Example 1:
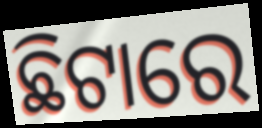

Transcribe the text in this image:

ଛିଟାରେ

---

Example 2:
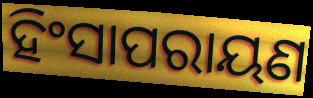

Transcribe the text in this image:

ହିଂସାପରାୟଣ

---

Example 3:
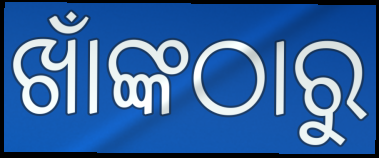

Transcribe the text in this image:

ଖାଁଙ୍କଠାରୁ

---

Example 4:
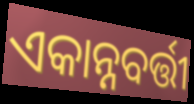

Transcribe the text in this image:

ଏକାନ୍ନବର୍ତ୍ତୀ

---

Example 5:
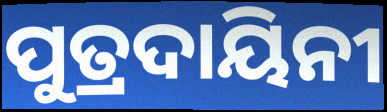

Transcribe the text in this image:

ପୁତ୍ରଦାୟିନୀ